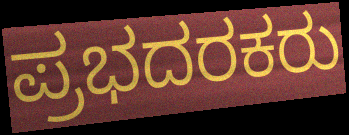
ಪ್ರಭದರಕರು